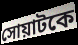
সোয়াটকে